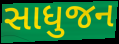
સાધુજન